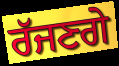
ਰੱਜਣਗੇ